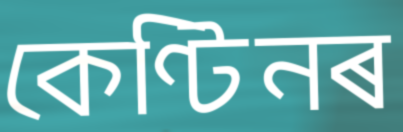
কেণ্টিনৰ